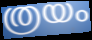
ത്രയം